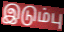
இடும்பு